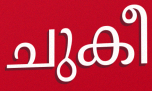
ചുകീ